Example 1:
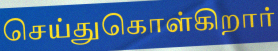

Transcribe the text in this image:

செய்துகொள்கிறார்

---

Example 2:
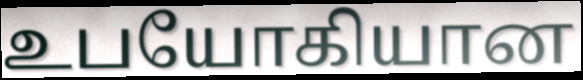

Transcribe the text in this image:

உபயோகியான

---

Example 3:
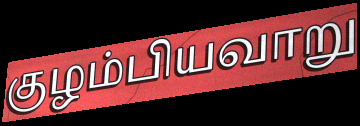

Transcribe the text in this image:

குழம்பியவாறு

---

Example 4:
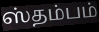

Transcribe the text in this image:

ஸ்தம்பம்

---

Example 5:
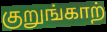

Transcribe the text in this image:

குறுங்காற்